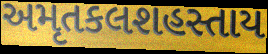
અમૃતકલશહસ્તાય